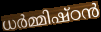
ധർമ്മിഷ്ഠൻ